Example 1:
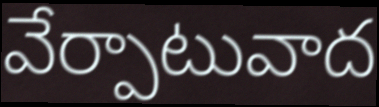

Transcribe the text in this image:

వేర్పాటువాద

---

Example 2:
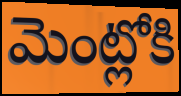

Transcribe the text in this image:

మెంట్లోకి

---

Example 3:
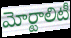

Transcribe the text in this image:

మోర్టాలిటీ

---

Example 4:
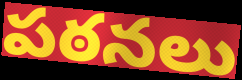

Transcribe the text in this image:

పఠనలు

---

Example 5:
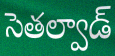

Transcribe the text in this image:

సెతల్వాడ్